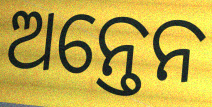
ଅନ୍ତେନ